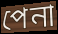
পেনা